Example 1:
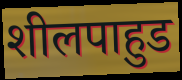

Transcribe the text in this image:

शीलपाहुड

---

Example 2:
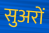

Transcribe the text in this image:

सुअरों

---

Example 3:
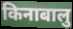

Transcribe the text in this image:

किनाबालु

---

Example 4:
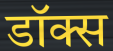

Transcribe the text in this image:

डॉक्स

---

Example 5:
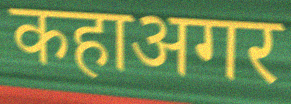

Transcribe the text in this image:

कहाअगर